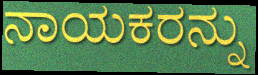
ನಾಯಕರನ್ನು